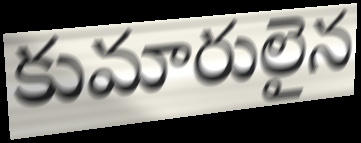
కుమారులైన